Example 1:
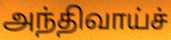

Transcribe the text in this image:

அந்திவாய்ச்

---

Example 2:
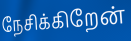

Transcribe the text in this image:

நேசிக்கிறேன்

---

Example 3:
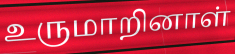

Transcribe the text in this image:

உருமாறினாள்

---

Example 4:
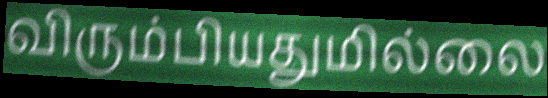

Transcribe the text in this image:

விரும்பியதுமில்லை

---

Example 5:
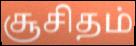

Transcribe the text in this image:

சூசிதம்